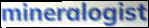
mineralogist